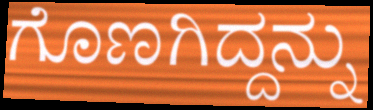
ಗೊಣಗಿದ್ದನ್ನು